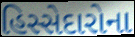
હિસ્સેદારોના